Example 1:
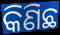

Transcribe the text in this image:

କିଣିଛ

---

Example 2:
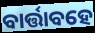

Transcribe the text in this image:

ବାର୍ତ୍ତାବହେ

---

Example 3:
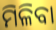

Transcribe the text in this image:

ମିଳିବା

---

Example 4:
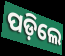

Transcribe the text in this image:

ପଡ଼ିଲେ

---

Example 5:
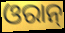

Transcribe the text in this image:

ଓରାନ୍